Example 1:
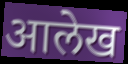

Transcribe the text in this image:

आलेख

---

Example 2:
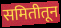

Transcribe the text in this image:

समितीतून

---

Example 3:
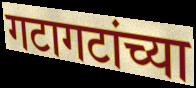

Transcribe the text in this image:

गटागटांच्या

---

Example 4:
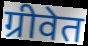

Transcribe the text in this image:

ग्रीवेत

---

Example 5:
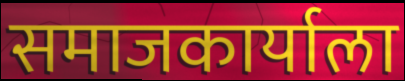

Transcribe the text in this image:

समाजकार्याला